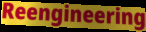
Reengineering